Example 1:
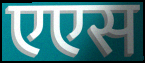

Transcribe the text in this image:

एएस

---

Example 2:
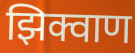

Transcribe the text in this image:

झिक्वाण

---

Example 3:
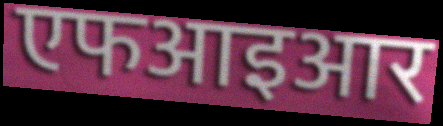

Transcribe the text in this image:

एफआइआर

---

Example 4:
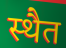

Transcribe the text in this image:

स्थैत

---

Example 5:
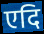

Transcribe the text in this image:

एदि